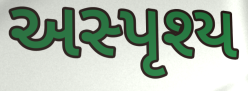
અસ્પૃશ્ય